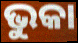
ଭୁକା